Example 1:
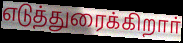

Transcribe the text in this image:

எடுத்துரைக்கிறார்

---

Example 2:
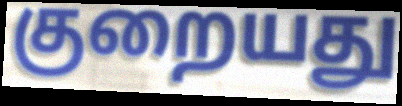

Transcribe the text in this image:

குறையது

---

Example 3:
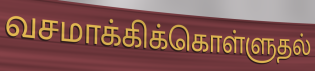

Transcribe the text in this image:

வசமாக்கிக்கொள்ளுதல்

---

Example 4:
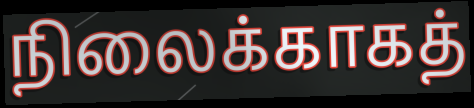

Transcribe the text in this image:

நிலைக்காகத்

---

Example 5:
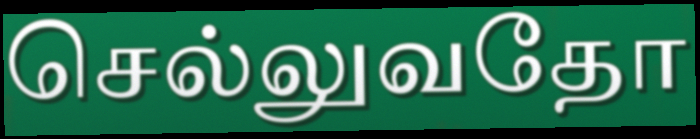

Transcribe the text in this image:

செல்லுவதோ